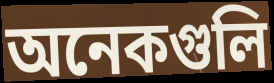
অনেকগুলি